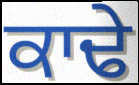
ਕਾਢੇ